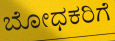
ಬೋಧಕರಿಗೆ